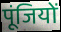
पूंजियों